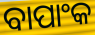
ବାପାଂକ